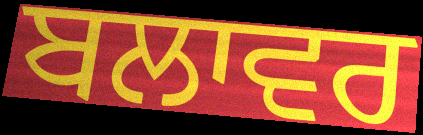
ਬਲਾਵਰ